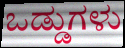
ಒಡ್ಡುಗಳು